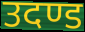
उदण्ड